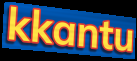
kkantu